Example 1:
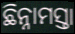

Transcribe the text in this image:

ଛିନ୍ନାମସ୍ତା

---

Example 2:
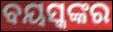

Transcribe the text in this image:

ବୟସ୍କଙ୍କର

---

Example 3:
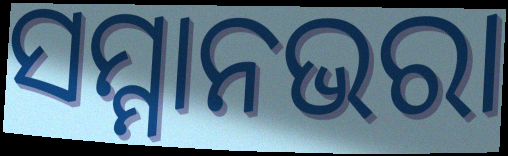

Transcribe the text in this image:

ସମ୍ମାନଭରା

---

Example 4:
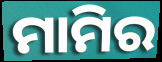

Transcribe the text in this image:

ମାମିର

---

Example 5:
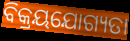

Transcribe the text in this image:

ବିକ୍ରୟଯୋଗ୍ୟତା